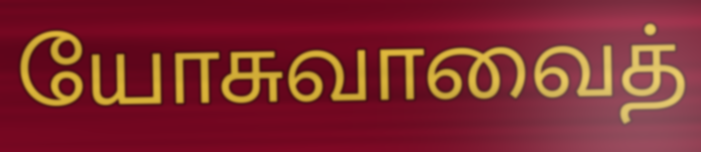
யோசுவாவைத்